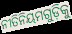
ନୀତିନିୟମଗୁଡ଼ିକୁ